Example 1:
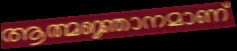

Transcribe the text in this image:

ആത്മജ്ഞാനമാണ്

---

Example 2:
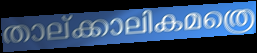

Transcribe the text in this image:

താല്ക്കാലികമത്രെ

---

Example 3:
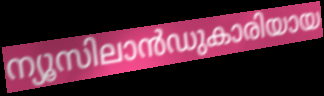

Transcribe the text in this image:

ന്യൂസിലാൻഡുകാരിയായ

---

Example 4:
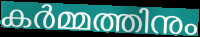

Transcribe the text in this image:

കർമ്മത്തിനും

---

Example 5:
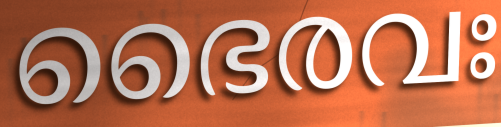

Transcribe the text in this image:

ഭൈരവഃ